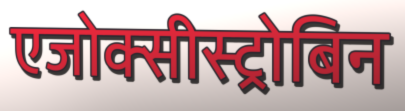
एजोक्सीस्ट्रोबिन